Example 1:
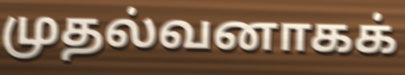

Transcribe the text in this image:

முதல்வனாகக்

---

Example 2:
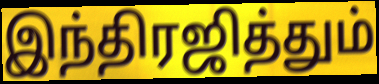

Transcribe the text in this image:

இந்திரஜித்தும்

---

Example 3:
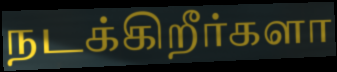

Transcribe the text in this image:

நடக்கிறீர்களா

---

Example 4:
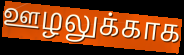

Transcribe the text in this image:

ஊழலுக்காக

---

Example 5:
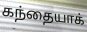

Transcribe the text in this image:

கந்தையாக்